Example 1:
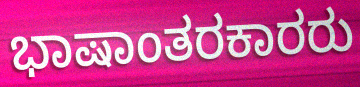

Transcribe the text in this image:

ಭಾಷಾಂತರಕಾರರು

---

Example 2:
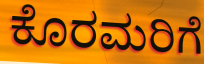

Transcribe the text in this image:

ಕೊರಮರಿಗೆ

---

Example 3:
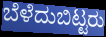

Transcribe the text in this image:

ಬೆಳೆದುಬಿಟ್ಟರು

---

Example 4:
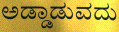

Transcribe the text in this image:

ಅಡ್ಡಾಡುವದು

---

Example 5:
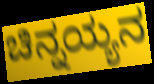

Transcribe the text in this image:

ಚಿನ್ನಯ್ಯನ